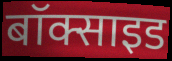
बॉक्साइड